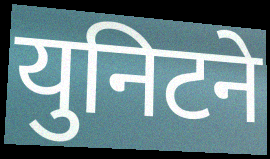
युनिटने